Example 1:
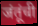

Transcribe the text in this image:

जंतूंची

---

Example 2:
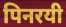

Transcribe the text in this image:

पिनरयी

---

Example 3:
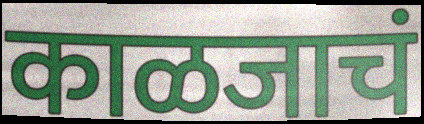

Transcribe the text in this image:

काळजाचं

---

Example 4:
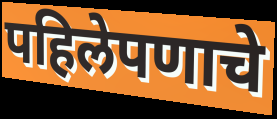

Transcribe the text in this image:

पहिलेपणाचे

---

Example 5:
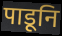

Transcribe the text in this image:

पाडूनि